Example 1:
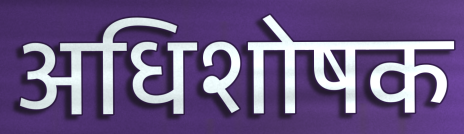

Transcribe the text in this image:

अधिशोषक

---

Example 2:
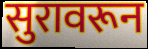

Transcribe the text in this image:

सुरावरून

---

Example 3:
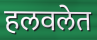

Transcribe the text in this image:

हलवलेत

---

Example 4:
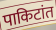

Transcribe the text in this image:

पाकिटांत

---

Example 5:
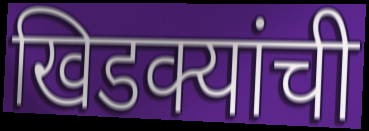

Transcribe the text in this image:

खिडक्यांची